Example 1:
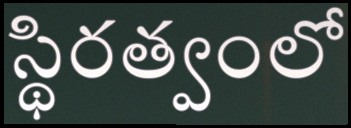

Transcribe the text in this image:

స్థిరత్వంలో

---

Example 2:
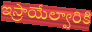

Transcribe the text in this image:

ఇస్రాయేల్వారికి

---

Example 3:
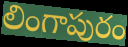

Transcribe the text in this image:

లింగాపురం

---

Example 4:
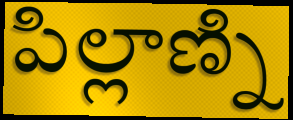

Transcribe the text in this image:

పిల్లాణ్ని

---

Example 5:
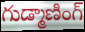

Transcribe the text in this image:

గుడ్మాణింగ్